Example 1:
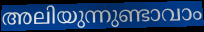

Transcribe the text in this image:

അലിയുന്നുണ്ടാവാം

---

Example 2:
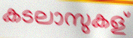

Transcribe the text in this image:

കടലാസുകള്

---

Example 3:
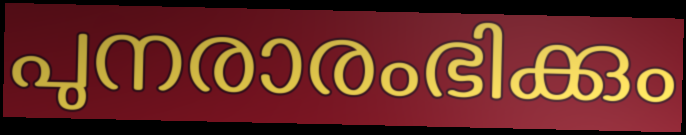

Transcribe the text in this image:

പുനരാരംഭിക്കും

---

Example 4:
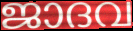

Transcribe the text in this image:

ജാദവ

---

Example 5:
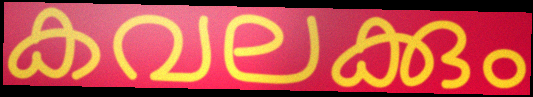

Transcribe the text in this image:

കവലക്കും